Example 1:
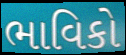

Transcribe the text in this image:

ભાવિકો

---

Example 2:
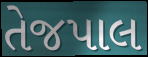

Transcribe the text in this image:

તેજપાલ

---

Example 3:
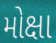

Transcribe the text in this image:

મોક્ષા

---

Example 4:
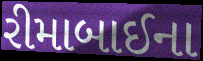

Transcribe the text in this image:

રીમાબાઈના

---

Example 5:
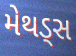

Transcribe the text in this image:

મેથડ્સ